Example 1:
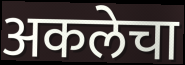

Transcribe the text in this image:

अकलेचा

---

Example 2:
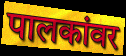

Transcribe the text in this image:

पालकांवर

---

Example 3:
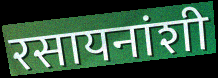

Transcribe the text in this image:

रसायनांशी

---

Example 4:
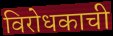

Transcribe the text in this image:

विरोधकाची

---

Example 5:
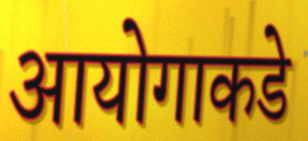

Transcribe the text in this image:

आयोगाकडे